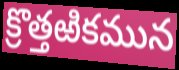
క్రొత్తఱికమున